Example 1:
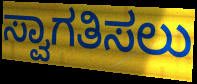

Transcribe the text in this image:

ಸ್ವಾಗತಿಸಲು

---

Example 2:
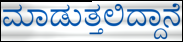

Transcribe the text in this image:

ಮಾಡುತ್ತಲಿದ್ದಾನೆ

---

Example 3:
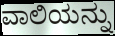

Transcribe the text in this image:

ವಾಲಿಯನ್ನು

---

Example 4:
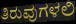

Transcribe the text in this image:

ತಿರುವುಗಳಲಿ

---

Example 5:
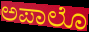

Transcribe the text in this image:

ಅಪಾಲೊ